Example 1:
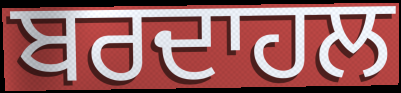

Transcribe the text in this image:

ਬਰਦਾਹਲ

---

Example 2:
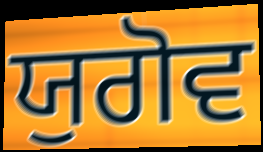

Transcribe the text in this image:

ਯੁਗੋਵ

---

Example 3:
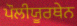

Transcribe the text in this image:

ਪੌਲੀਯੂਰਥੇਨ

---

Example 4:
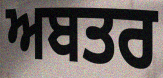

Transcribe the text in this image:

ਅਬਤਰ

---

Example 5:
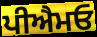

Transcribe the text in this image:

ਪੀਐਮਓ